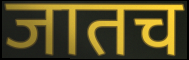
जातच